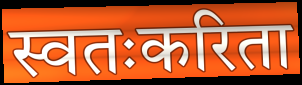
स्वतःकरिता